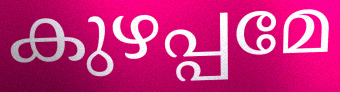
കുഴപ്പമേ